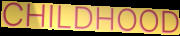
CHILDHOOD